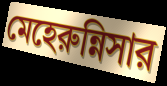
মেহেরুন্নিসার